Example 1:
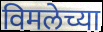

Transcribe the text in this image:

विमलेच्या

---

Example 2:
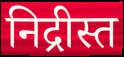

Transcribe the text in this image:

निद्रीस्त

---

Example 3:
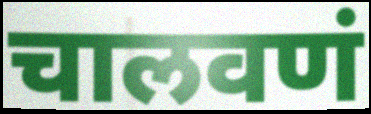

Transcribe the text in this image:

चालवणं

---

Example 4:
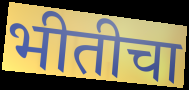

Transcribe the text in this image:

भीतीचा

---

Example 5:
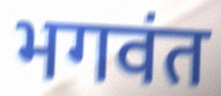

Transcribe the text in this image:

भगवंत